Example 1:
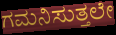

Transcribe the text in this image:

ಗಮನಿಸುತ್ತಲೇ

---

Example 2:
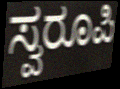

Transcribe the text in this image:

ಸ್ವರೂಪಿ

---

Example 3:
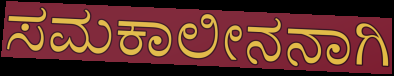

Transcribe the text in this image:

ಸಮಕಾಲೀನನಾಗಿ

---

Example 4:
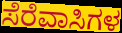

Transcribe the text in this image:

ಸೆರೆವಾಸಿಗಳ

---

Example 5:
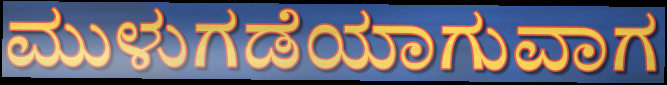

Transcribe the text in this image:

ಮುಳುಗಡೆಯಾಗುವಾಗ